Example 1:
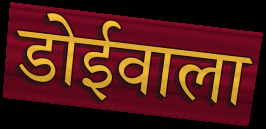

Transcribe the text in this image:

डोईवाला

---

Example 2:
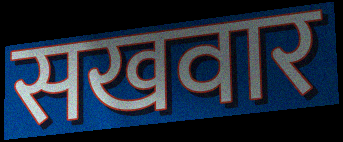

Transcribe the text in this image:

सखवार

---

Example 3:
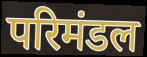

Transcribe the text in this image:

परिमंडल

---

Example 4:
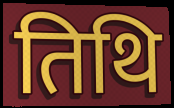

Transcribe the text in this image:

तिथि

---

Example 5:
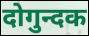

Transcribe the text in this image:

दोगुन्दक